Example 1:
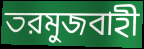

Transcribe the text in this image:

তরমুজবাহী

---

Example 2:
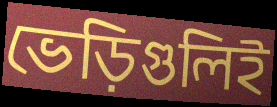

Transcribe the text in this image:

ভেড়িগুলিই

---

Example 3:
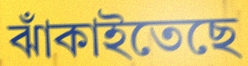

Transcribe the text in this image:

ঝাঁকাইতেছে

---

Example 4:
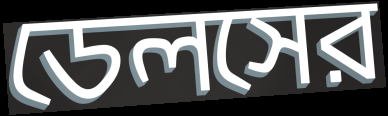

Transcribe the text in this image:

ডেলসের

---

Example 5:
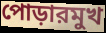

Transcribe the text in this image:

পোড়ারমুখ